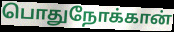
பொதுநோக்கான்